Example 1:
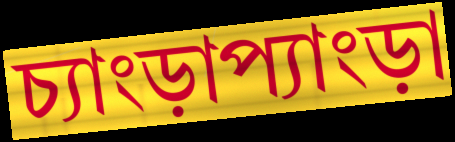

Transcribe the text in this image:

চ্যাংড়াপ্যাংড়া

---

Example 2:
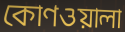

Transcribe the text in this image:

কোণওয়ালা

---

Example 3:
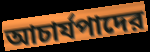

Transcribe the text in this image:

আচার্যপাদের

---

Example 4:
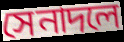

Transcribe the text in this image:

সেনাদলে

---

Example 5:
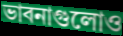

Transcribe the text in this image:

ভাবনাগুলোও